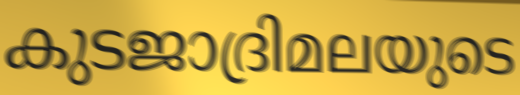
കുടജാദ്രിമലയുടെ